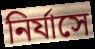
নির্যাসে